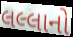
લલ્લાનો